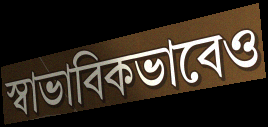
স্বাভাবিকভাবেও